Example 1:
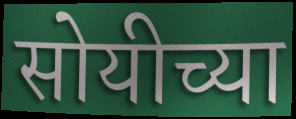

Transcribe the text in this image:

सोयीच्या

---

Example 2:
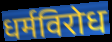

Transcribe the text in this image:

धर्मविरोध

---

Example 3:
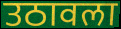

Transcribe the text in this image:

उठावला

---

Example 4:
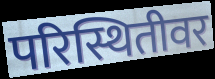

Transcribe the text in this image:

परिस्थितीवर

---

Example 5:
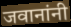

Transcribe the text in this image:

जवानांनी